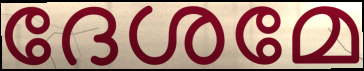
ദേശമേ